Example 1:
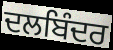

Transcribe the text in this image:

ਦਲਬਿੰਦਰ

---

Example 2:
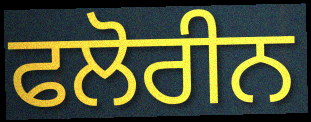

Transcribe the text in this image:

ਫਲੋਰੀਨ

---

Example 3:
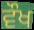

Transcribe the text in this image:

ਵੌਖ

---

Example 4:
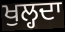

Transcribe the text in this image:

ਖੁਲ੍ਹਦਾ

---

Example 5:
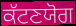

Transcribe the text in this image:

ਕੱਟਣਯੋਗ